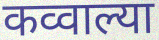
कव्वाल्या